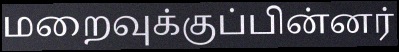
மறைவுக்குப்பின்னர்